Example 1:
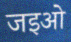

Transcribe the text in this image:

जइओ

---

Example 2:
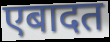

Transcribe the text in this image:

एबादत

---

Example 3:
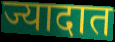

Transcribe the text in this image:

ज्यादात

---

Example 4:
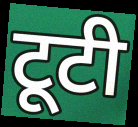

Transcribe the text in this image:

टूटी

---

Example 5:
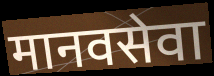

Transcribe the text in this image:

मानवसेवा